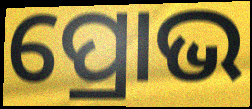
ପ୍ରୋଭ